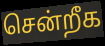
சென்றீக